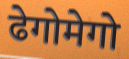
ढेगोमेगो